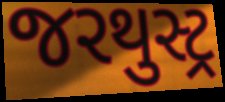
જરથુસ્ટ્ર